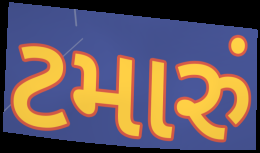
ટમારું